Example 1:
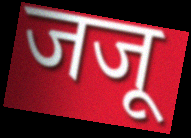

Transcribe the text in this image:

जजू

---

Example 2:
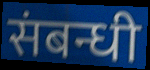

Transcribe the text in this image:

संबन्धी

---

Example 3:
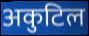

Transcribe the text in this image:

अकुटिल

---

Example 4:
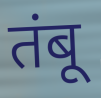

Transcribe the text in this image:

तंबू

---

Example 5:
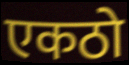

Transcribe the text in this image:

एकठो